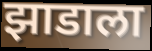
झाडाला